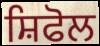
ਸ਼ਿਫੋਲ